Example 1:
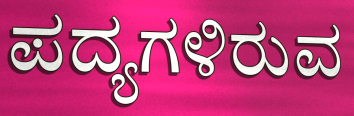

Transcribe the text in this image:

ಪದ್ಯಗಳಿರುವ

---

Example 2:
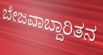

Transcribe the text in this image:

ಬೇಜವಾಬ್ದಾರಿತನ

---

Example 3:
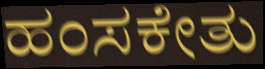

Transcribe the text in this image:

ಹಂಸಕೇತು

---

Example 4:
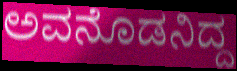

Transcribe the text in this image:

ಅವನೊಡನಿದ್ದ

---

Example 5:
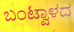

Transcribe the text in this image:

ಬಂಟ್ವಾಳದ